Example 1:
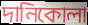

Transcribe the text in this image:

দানিকোলা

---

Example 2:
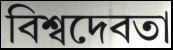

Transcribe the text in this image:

বিশ্বদেবতা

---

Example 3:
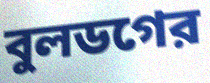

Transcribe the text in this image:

বুলডগের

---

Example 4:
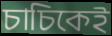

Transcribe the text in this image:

চাচিকেই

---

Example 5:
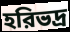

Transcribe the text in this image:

হরিভদ্র